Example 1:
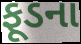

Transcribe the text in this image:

ફૂડના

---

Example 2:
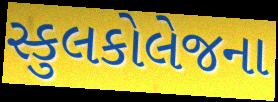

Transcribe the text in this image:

સ્કુલકોલેજના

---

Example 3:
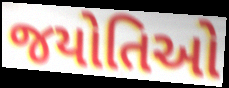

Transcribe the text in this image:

જયોતિઓ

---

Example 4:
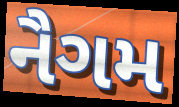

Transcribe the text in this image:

નૈગમ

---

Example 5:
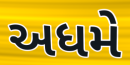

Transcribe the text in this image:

અધમે